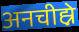
अनचीह्ने